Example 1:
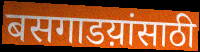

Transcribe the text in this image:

बसगाडय़ांसाठी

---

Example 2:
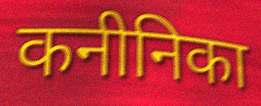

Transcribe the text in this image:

कनीनिका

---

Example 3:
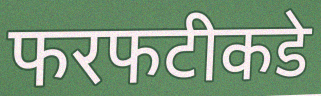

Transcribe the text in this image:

फरफटीकडे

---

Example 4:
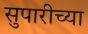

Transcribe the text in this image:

सुपारीच्या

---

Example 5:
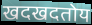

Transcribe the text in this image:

खदखदतोय